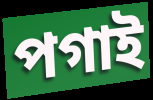
পগাই